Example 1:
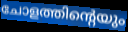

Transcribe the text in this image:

ചോളത്തിന്റെയും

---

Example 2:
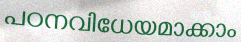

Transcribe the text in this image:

പഠനവിധേയമാക്കാം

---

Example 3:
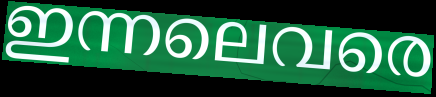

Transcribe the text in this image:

ഇന്നലെവരെ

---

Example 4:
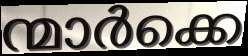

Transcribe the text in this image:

ന്മാർക്കെ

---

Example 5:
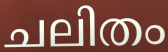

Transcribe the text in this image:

ചലിതം